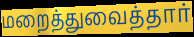
மறைத்துவைத்தார்